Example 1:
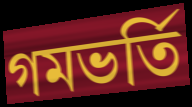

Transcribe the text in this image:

গমভর্তি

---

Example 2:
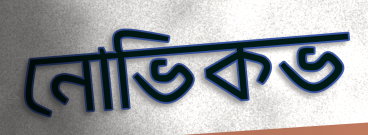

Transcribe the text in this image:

নোভিকভ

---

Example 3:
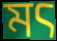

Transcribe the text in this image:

মৎ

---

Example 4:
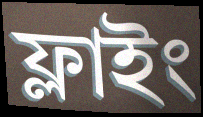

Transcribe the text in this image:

ফ্লাইং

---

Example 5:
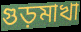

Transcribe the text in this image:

গুড়মাখা